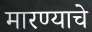
मारण्याचे